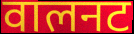
वालनट